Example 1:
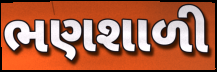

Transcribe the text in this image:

ભણશાળી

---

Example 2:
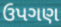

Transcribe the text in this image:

ઉપગણ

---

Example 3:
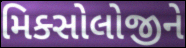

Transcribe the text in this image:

મિક્સોલોજીને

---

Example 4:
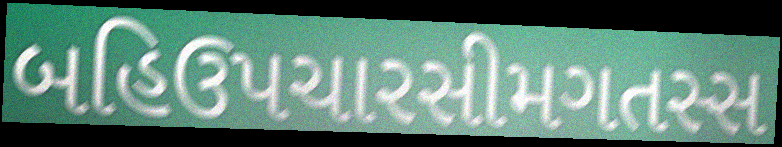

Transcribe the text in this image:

બહિઉપચારસીમગતસ્સ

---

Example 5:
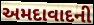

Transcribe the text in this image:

અમદાવાદની